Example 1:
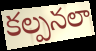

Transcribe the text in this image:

కల్పనలా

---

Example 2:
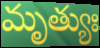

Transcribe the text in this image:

మృత్యుః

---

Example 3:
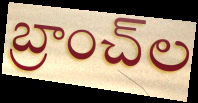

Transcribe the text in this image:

బ్రాంచ్‌ల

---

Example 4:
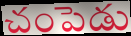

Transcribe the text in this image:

చంపెడు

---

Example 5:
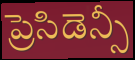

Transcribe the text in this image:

ప్రెసిడెన్సీ